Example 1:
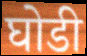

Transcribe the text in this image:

घोडी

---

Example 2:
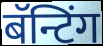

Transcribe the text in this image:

बॅन्टिंग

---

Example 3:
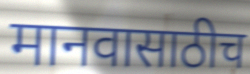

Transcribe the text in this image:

मानवासाठीच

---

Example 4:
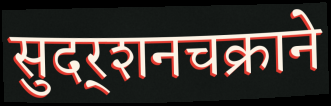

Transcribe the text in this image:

सुदर्शनचक्राने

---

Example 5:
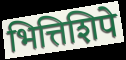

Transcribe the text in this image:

भित्तिशिपे